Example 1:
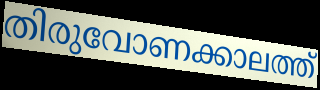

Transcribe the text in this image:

തിരുവോണക്കാലത്ത്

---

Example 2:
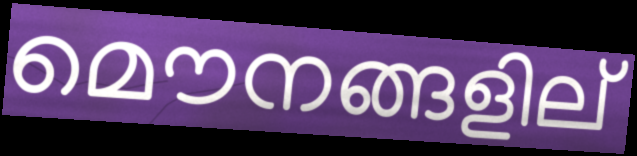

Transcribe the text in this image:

മൌനങ്ങളില്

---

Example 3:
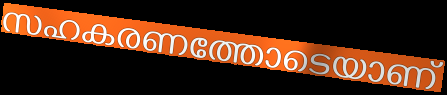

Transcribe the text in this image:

സഹകരണത്തോടെയാണ്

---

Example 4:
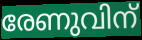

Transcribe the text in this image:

രേണുവിന്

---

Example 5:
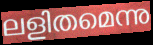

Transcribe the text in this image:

ലളിതമെന്നു